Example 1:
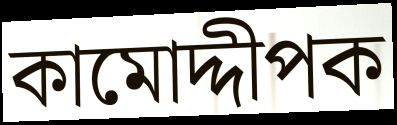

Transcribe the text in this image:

কামোদ্দীপক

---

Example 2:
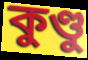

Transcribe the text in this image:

কুণ্ডু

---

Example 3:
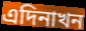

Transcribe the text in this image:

এদিনাখন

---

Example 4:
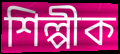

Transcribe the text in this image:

শিল্পীক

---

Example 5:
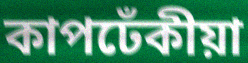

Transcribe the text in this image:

কাপঢেঁকীয়া